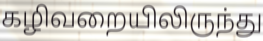
கழிவறையிலிருந்து